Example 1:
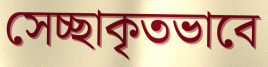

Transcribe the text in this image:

সেচ্ছাকৃতভাবে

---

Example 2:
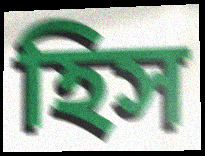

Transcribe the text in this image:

হিস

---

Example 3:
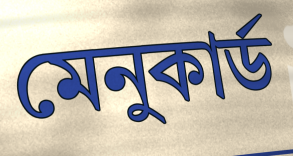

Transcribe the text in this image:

মেনুকার্ড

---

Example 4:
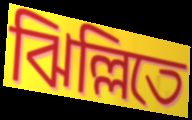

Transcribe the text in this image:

ঝিল্লিতে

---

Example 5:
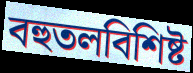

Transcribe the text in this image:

বহুতলবিশিষ্ট